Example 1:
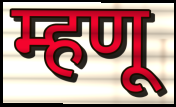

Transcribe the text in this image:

म्हणू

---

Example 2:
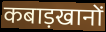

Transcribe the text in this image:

कबाड़खानों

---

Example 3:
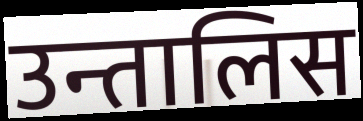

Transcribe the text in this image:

उन्तालिस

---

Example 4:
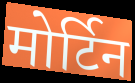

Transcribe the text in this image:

मोर्टिन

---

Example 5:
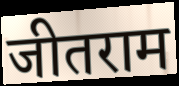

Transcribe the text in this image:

जीतराम